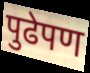
पुढेपण